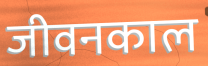
जीवनकाल